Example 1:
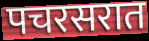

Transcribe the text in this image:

पचरसरात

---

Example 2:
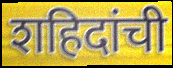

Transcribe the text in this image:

शहिदांची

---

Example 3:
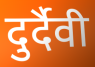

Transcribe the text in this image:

दुर्दैवी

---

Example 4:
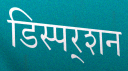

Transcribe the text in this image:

डिस्पर्शन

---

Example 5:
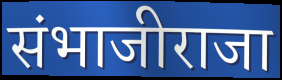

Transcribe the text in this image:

संभाजीराजा